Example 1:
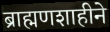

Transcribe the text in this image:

ब्राह्मणशाहीने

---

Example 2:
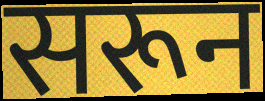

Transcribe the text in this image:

सरून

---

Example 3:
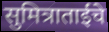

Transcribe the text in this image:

सुमित्राताईंचे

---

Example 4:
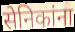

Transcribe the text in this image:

सेनिकांना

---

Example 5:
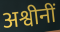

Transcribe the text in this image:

अश्वीनीं